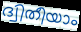
ദ്വിതീയാം